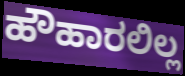
ಹೌಹಾರಲಿಲ್ಲ